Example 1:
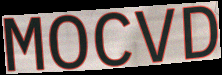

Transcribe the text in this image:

MOCVD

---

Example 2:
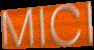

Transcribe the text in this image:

MICI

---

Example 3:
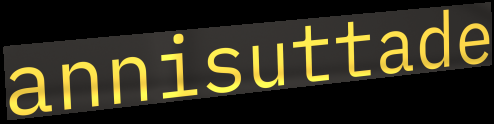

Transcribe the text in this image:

annisuttade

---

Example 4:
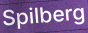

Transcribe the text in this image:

Spilberg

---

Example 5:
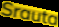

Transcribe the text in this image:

Srauta